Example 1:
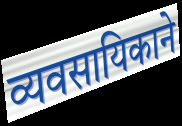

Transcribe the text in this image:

व्यवसायिकाने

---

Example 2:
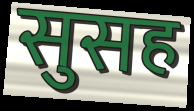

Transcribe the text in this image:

सुसह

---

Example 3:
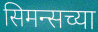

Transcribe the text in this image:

सिमन्सच्या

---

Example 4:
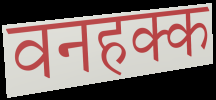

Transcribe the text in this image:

वनहक्क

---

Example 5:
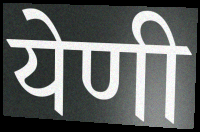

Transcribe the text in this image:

येणी